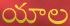
యాల